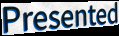
Presented